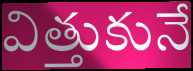
విత్తుకునే